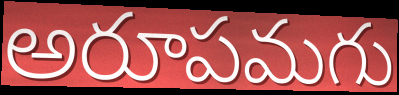
అరూపమగు